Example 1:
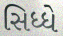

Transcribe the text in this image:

સિધ્ધે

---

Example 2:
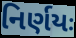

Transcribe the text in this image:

નિર્ણયઃ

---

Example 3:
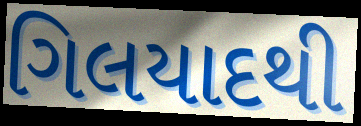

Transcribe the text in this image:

ગિલયાદથી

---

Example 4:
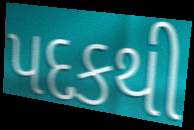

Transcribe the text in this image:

પદકથી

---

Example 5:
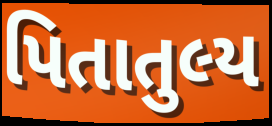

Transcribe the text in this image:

પિતાતુલ્ય